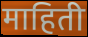
माहिती